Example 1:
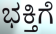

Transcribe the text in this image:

ಭಕ್ತಿಗೆ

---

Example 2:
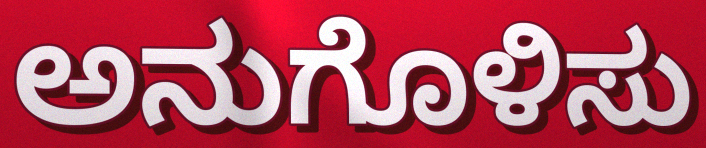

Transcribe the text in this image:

ಅನುಗೊಳಿಸು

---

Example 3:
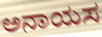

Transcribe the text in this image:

ಅನಾಯಸ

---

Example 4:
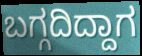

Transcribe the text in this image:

ಬಗ್ಗದಿದ್ದಾಗ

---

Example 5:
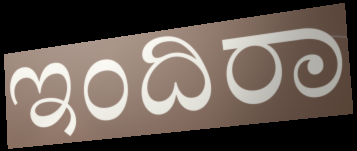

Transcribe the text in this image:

ಇಂದಿರಾ